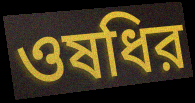
ওষধির